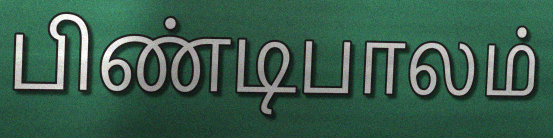
பிண்டிபாலம்